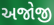
અજોજી